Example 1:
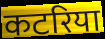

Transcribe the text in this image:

कटरिया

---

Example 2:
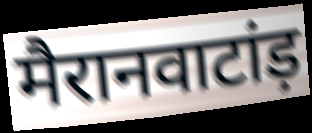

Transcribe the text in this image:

मैरानवाटांड़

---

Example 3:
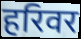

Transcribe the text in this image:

हरिवर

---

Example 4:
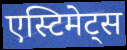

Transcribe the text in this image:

एस्टिमेट्स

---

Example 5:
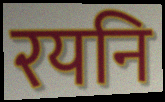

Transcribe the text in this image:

रयनि